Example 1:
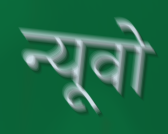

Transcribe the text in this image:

न्यूवो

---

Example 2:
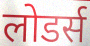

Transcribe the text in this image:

लोडर्स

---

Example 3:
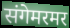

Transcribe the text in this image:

संगेमरमर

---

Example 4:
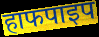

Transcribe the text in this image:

हाफपाइप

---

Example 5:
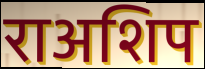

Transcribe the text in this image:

राअशिप